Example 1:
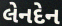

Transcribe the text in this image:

લેનદેન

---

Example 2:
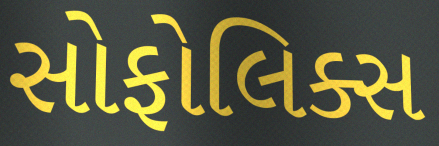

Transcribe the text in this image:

સોફોલિક્સ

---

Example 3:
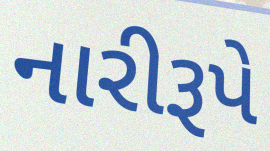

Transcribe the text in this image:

નારીરૂપે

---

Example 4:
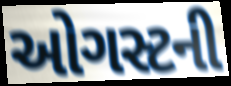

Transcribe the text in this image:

ઓગસ્ટની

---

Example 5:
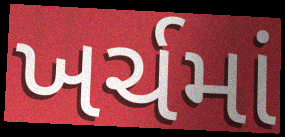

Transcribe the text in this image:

ખર્ચમાં